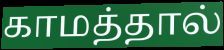
காமத்தால்